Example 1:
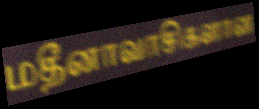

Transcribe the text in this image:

மதீனாவாசிகளான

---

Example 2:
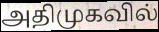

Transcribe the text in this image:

அதிமுகவில்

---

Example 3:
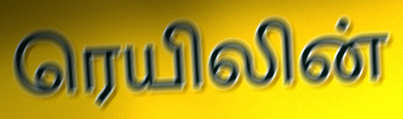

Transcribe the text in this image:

ரெயிலின்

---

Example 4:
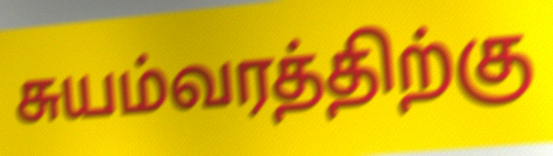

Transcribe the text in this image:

சுயம்வரத்திற்கு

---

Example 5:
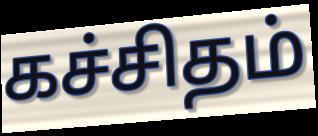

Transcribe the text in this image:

கச்சிதம்